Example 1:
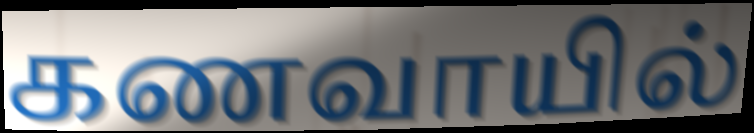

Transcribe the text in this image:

கணவாயில்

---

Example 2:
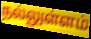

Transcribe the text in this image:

நல்லுள்ளம்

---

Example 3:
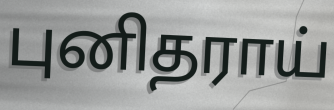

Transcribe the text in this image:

புனிதராய்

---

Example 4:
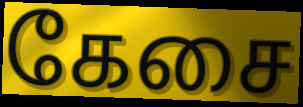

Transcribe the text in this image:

கேசை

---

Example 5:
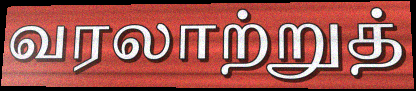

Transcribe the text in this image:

வரலாற்றுத்